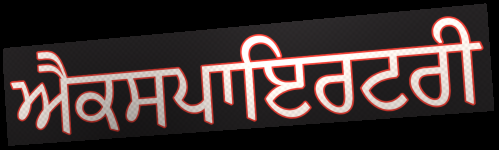
ਐਕਸਪਾਇਰਟਰੀ